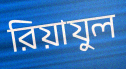
রিয়াযুল